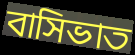
বাসিভাত